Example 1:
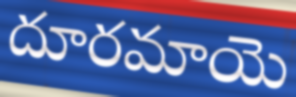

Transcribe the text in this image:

దూరమాయె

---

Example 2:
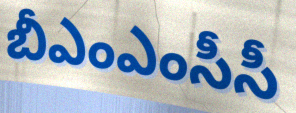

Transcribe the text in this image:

బీఎంఎంసీసీ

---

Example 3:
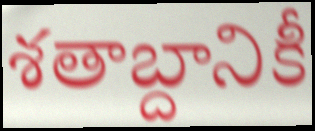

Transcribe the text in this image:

శతాబ్దానికీ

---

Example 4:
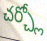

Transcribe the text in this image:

చర్చ్లో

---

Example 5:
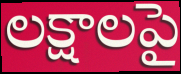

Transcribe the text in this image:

లక్షాలపై